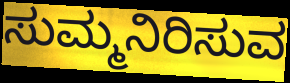
ಸುಮ್ಮನಿರಿಸುವ